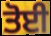
ਤੋਈ